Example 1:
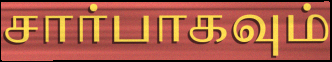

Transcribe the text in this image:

சார்பாகவும்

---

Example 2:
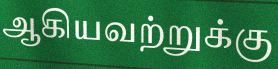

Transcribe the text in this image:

ஆகியவற்றுக்கு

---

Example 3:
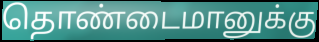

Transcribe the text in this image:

தொண்டைமானுக்கு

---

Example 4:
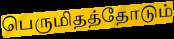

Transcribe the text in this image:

பெருமிதத்தோடும்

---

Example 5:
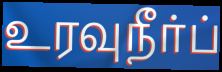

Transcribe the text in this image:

உரவுநீர்ப்